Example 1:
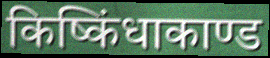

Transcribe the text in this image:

किष्किंधाकाण्ड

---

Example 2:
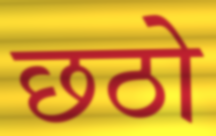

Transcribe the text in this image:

छठो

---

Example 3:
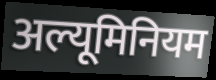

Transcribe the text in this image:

अल्यूमिनियम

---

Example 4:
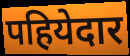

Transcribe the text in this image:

पहियेदार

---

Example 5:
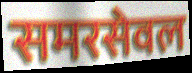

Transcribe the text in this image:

समरसेवल